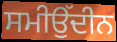
ਸਮੀਉੱਦੀਨ